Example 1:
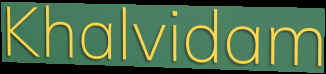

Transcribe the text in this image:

Khalvidam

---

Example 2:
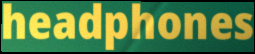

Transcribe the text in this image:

headphones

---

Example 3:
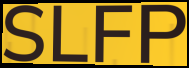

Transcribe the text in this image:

SLFP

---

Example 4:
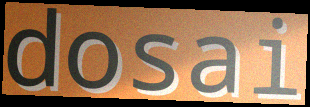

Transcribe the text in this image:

dosai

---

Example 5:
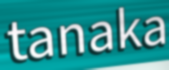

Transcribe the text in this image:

tanaka